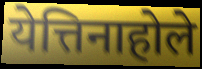
येत्तिनाहोले